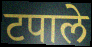
टपाले